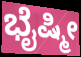
ಭೈಷ್ಮೀ